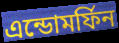
এন্ডোমর্ফিন